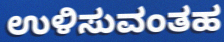
ಉಳಿಸುವಂತಹ